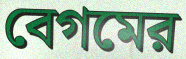
বেগমের